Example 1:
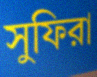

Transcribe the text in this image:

সুফিরা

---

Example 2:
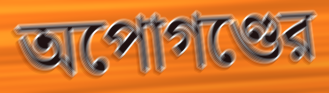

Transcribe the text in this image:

অপোগণ্ডের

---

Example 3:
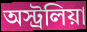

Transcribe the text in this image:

অস্ট্রলিয়া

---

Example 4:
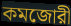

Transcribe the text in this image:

কমজোরী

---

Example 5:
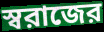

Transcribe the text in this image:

স্বরাজের